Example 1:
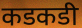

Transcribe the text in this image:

कडकडी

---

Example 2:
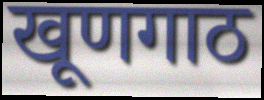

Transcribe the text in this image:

खूणगाठ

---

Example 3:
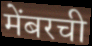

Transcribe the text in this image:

मेंबरची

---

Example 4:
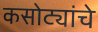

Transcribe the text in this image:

कसोट्यांचे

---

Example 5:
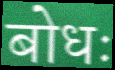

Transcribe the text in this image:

बोधः